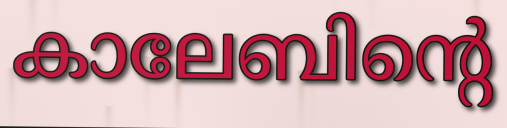
കാലേബിന്റെ